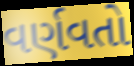
વર્ણવતો